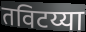
तविटय्या